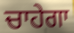
ਚਾਹੇਗਾ